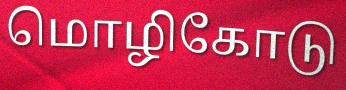
மொழிகோடு